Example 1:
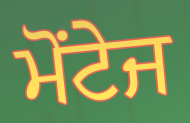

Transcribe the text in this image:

ਮੋਂਟੇਜ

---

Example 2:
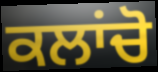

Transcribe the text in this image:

ਕਲਾਂਚੋ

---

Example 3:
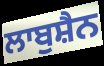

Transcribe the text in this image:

ਲਾਬੁਸ਼ੈਨ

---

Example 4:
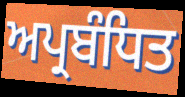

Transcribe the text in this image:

ਅਪ੍ਰਬੰਧਿਤ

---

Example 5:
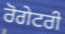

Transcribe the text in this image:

ਰੋਗੇਟਰੀ